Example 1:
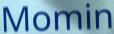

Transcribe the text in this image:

Momin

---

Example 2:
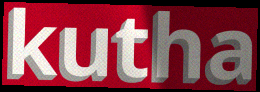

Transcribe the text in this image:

kutha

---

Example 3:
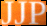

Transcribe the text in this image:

JJP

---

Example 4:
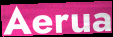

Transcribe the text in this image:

Aerua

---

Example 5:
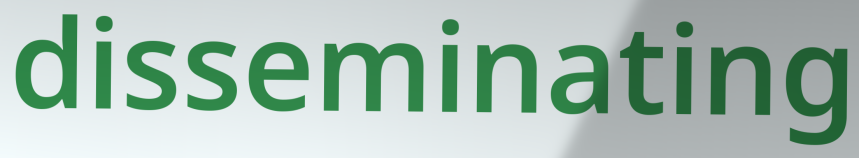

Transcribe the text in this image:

disseminating